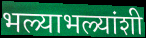
भल्याभल्यांशी